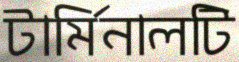
টার্মিনালটি